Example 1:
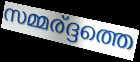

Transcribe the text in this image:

സമ്മര്ദ്ദത്തെ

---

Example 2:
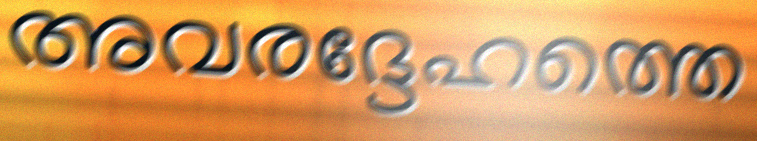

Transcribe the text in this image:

അവരദ്ദേഹത്തെ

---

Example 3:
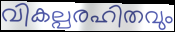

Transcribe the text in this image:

വികല്പരഹിതവും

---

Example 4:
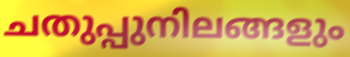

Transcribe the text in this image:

ചതുപ്പുനിലങ്ങളും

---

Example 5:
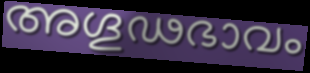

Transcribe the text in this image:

അഗൂഢഭാവം